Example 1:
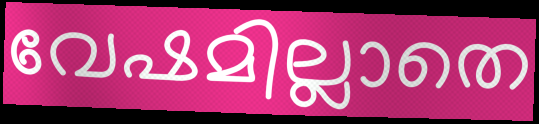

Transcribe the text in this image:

വേഷമില്ലാതെ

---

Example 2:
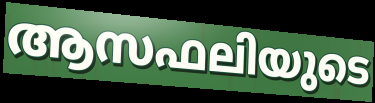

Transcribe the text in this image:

ആസഫലിയുടെ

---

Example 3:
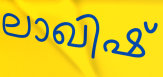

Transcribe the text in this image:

ലാഖിഷ്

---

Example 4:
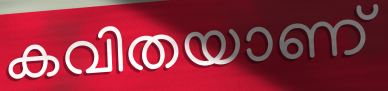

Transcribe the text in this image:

കവിതയാണ്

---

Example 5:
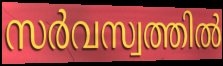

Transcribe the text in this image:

സർവസ്വത്തിൽ